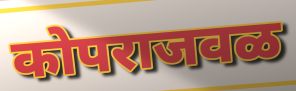
कोपराजवळ